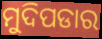
ମୁଦିପଡାର